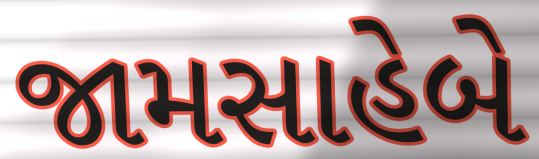
જામસાહેબે